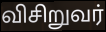
விசிறுவர்